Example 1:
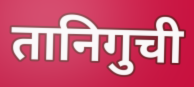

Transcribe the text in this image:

तानिगुची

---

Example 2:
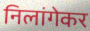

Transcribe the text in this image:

निलांगेकर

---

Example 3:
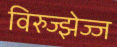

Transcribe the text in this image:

विरुज्झेज्ज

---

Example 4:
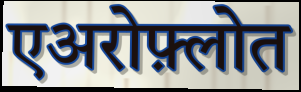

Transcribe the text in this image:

एअरोफ़्लोत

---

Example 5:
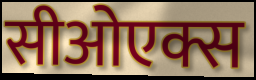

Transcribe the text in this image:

सीओएक्स